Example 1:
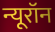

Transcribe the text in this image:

न्यूरॉन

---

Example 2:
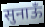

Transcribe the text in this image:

सुनाऊँ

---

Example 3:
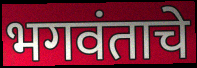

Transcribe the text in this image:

भगवंताचे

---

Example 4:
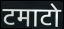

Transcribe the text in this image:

टमाटो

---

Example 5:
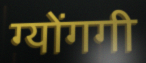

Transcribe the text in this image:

ग्योंगगी